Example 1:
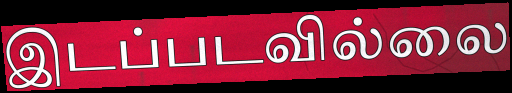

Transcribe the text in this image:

இடப்படவில்லை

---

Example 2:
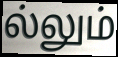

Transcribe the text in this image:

ல்லும்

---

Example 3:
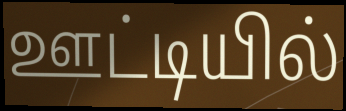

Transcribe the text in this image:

ஊட்டியில்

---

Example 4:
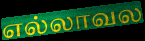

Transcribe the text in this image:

எல்லாவல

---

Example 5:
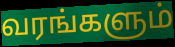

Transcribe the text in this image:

வரங்களும்